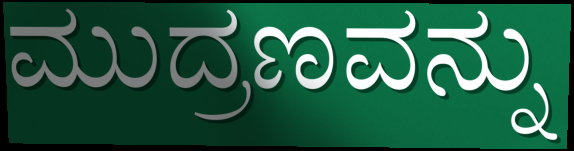
ಮುದ್ರಣವನ್ನು